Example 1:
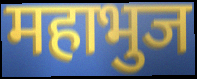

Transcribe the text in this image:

महाभुज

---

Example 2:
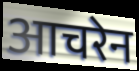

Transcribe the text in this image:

आचरेन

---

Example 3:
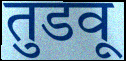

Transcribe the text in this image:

तुडवू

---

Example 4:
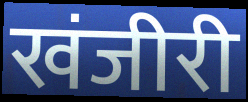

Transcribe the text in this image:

खंजीरी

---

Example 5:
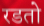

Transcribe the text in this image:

रडतो